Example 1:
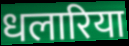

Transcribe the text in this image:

धलारिया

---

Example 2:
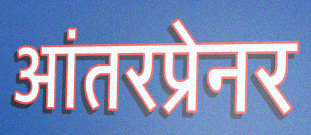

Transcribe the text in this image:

आंतरप्रेनर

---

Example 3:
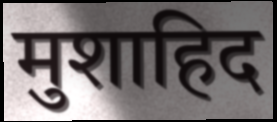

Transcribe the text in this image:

मुशाहिद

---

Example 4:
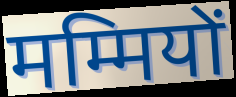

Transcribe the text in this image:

मम्मियों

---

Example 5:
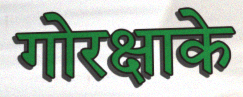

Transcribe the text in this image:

गोरक्षाके